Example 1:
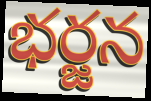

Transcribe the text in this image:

భర్జన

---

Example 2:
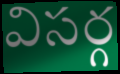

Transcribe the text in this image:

విసర్గ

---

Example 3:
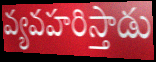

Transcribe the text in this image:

వ్యవహరిస్తాడు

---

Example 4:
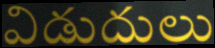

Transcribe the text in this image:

విడుదులు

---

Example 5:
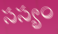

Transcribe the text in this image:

సస్యం